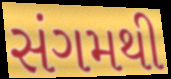
સંગમથી